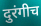
दुरंगीच